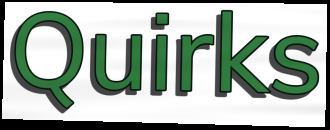
Quirks